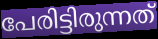
പേരിട്ടിരുന്നത്